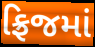
ફ્રિજમાં